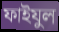
ফাইযুল